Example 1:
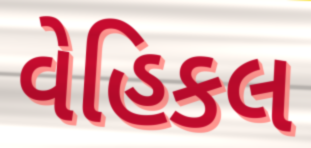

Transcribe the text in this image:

વેહિકલ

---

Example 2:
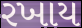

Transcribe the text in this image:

રખાય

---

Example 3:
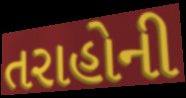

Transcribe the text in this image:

તરાહોની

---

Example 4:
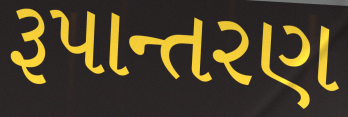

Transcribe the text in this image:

રૂપાન્તરણ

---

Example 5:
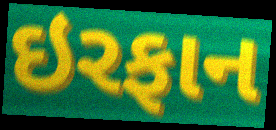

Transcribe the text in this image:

ઇરફાન